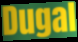
Dugal